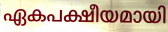
ഏകപക്ഷീയമായി